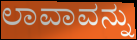
ಲಾವಾವನ್ನು